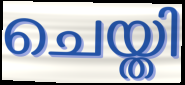
ചെയ്തി